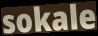
sokale